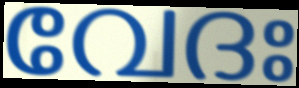
വേദഃ